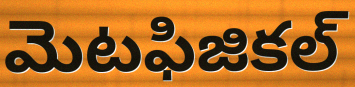
మెటఫిజికల్